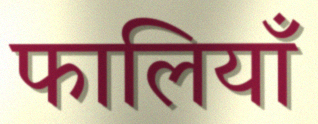
फालियाँ